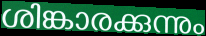
ശിങ്കാരക്കുന്നും